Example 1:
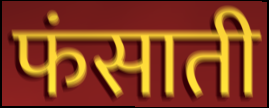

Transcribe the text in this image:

फंसाती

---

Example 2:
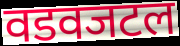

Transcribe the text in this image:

वडवजटल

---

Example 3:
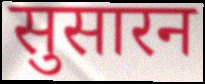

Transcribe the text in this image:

सुसारन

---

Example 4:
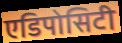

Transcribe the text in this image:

एडिपोसिटी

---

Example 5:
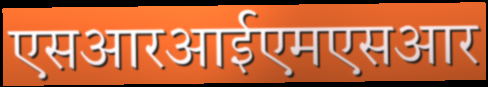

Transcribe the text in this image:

एसआरआईएमएसआर